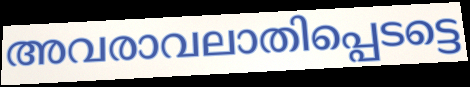
അവരാവലാതിപ്പെടട്ടെ